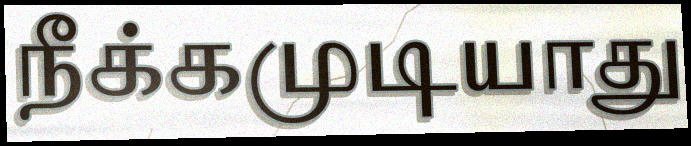
நீக்கமுடியாது